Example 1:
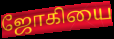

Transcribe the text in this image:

ஜோகியை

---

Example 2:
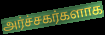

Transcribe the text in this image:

அர்ச்சகர்களாக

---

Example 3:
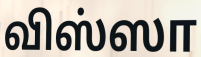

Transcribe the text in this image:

விஸ்ஸா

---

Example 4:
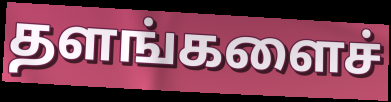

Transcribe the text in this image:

தளங்களைச்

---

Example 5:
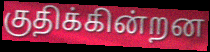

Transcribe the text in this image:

குதிக்கின்றன